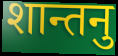
शान्तनु